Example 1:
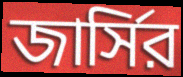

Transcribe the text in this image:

জার্সির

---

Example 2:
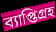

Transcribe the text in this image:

ব্যাপ্তিগ্রহ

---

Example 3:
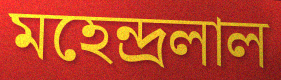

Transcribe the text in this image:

মহেন্দ্রলাল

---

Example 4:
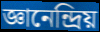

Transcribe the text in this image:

জ্ঞানেন্দ্রিয়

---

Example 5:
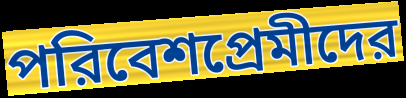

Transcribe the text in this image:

পরিবেশপ্রেমীদের